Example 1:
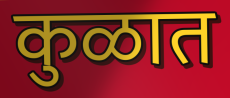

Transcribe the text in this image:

कुळात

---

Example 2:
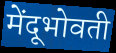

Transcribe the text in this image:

मेंदूभोवती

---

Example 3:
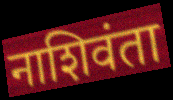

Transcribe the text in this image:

नाशिवंता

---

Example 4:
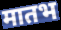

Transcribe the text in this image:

मातभ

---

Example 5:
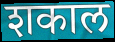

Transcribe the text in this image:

शकाल